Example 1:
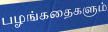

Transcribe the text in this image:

பழங்கதைகளும்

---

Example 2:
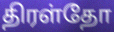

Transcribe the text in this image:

திரள்தோ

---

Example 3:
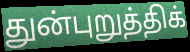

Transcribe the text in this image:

துன்புறுத்திக்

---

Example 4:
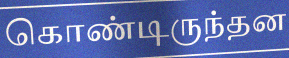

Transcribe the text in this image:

கொண்டிருந்தன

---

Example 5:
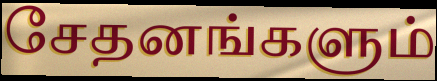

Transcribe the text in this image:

சேதனங்களும்